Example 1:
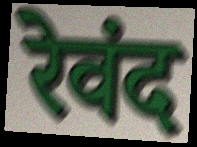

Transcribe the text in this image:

रेवंद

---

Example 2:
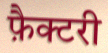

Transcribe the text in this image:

फ़ैक्टरी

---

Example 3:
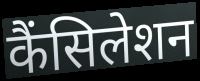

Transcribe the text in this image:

कैंसिलेशन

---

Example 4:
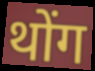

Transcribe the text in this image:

थोंग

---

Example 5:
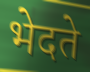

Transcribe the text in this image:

भेदते